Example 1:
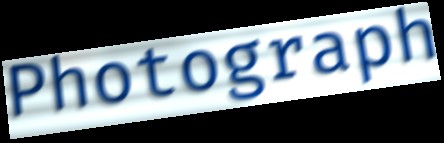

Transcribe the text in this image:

Photograph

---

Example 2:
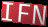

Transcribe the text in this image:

IFN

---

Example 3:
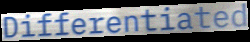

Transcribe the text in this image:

Differentiated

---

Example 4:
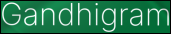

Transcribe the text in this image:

Gandhigram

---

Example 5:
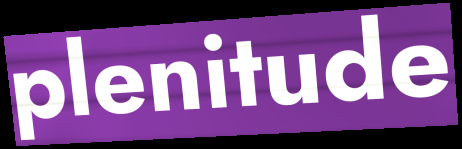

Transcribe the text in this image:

plenitude